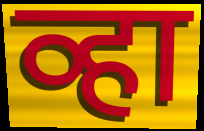
व्हा